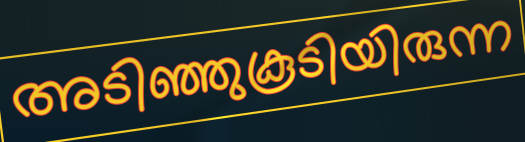
അടിഞ്ഞുകൂടിയിരുന്ന